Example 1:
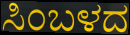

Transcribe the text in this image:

ಸಿಂಬಳದ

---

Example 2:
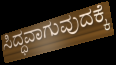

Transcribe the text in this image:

ಸಿದ್ಧವಾಗುವುದಕ್ಕೆ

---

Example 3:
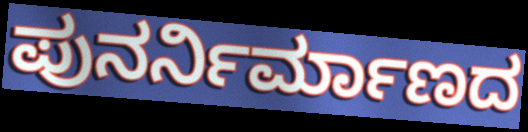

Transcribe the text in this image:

ಪುನರ್ನಿರ್ಮಾಣದ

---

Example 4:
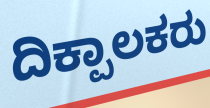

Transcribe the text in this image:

ದಿಕ್ಪಾಲಕರು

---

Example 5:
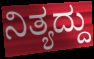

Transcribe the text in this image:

ನಿತ್ಯದ್ದು